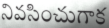
నివసించుగాక